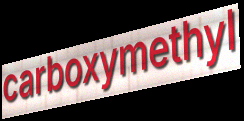
carboxymethyl